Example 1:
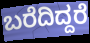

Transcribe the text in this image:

ಬರೆದಿದ್ದರೆ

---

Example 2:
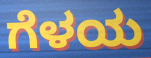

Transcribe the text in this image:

ಗೆಳಯ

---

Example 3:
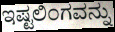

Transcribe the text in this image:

ಇಷ್ಟಲಿಂಗವನ್ನು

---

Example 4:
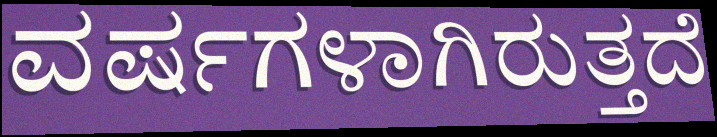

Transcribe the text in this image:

ವರ್ಷಗಳಾಗಿರುತ್ತದೆ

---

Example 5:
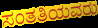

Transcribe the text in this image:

ಸಂತತಿಯವರು